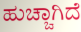
ಹುಚ್ಚಾಗಿದೆ